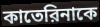
কাতেরিনাকে